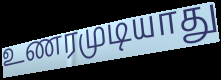
உணரமுடியாது